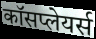
कॉसप्लेयर्स